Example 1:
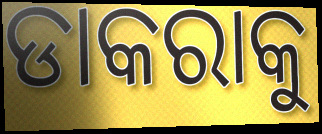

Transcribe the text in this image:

ଡାକରାକୁ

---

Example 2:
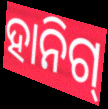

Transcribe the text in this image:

ହାନିଗ୍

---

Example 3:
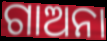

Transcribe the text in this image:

ଗାଅନା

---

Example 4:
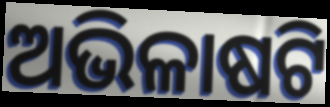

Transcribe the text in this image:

ଅଭିଳାଷଟି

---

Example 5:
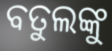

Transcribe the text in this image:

ବତୁଲଙ୍କୁ